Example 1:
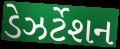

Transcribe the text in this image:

ડેઝર્ટેશન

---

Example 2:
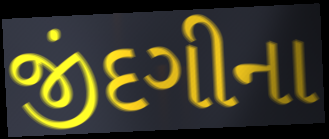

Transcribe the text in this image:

જીંદગીના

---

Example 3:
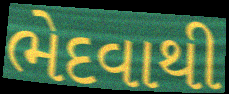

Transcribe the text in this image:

ભેદવાથી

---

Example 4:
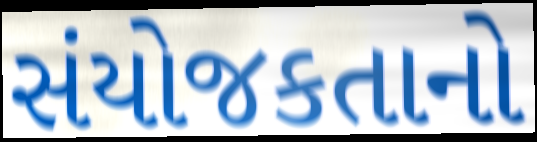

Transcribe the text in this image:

સંયોજકતાનો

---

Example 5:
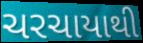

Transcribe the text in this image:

ચરચાયાથી